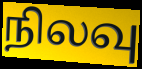
நிலவு